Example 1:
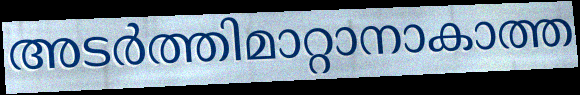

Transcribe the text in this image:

അടർത്തിമാറ്റാനാകാത്ത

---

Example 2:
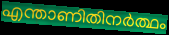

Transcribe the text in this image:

എന്താണിതിനർത്ഥം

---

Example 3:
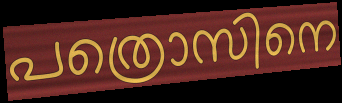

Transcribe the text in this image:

പത്രൊസിനെ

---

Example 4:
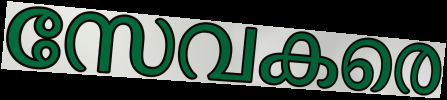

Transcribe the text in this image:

സേവകരെ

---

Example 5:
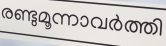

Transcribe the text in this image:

രണ്ടുമൂന്നാവർത്തി